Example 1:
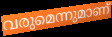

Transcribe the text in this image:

വരുമെന്നുമാണ്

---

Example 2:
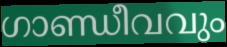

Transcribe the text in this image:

ഗാണ്ഡീവവും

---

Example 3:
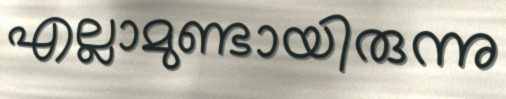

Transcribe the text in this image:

എല്ലാമുണ്ടായിരുന്നു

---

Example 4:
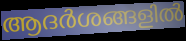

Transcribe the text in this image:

ആദർശങ്ങളിൽ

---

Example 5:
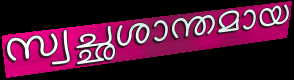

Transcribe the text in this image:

സ്വച്ഛശാന്തമായ